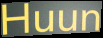
Huun